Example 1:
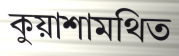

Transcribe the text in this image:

কুয়াশামথিত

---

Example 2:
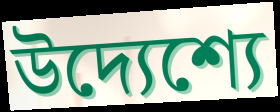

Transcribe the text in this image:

উদ্যেশ্যে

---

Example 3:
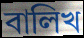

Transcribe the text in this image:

বালিখ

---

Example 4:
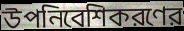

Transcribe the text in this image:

উপনিবেশিকরণের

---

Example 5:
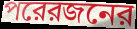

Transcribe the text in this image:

পরেরজনের